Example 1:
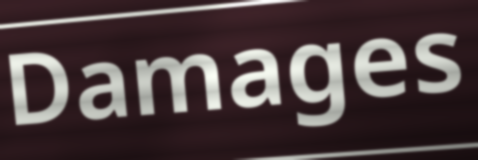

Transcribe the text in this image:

Damages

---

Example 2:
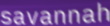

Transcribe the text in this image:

savannah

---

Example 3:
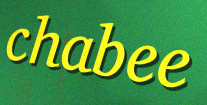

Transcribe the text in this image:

chabee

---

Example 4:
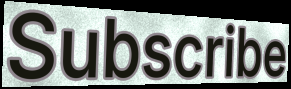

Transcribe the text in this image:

Subscribe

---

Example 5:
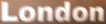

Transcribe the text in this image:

London